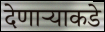
देणाऱ्याकडे